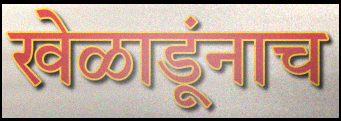
खेळाडूंनाच